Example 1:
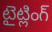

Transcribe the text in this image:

టైట్లింగ్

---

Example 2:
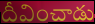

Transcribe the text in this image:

దీవించాడు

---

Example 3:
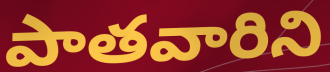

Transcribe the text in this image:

పాతవారిని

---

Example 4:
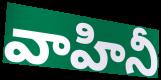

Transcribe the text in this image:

వాహినీ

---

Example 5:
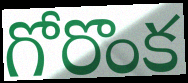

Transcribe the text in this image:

గోరొంక